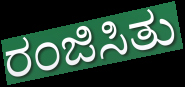
ರಂಜಿಸಿತು